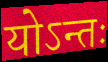
योऽन्तः